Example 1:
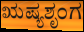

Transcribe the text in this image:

ಋಷ್ಯಶೃಂಗ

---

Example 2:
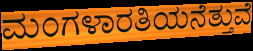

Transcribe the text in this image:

ಮಂಗಳಾರತಿಯನೆತ್ತುವೆ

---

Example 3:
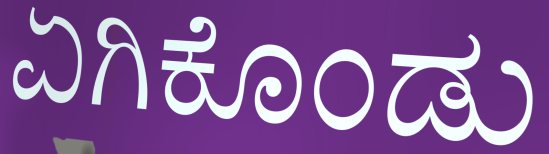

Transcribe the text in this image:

ಏಗಿಕೊಂಡು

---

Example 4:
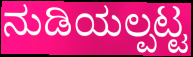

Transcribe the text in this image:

ನುಡಿಯಲ್ಪಟ್ಟ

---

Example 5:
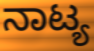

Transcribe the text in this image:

ನಾಟ್ಯ